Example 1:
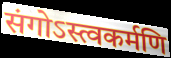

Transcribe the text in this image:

संगोऽस्त्वकर्मणि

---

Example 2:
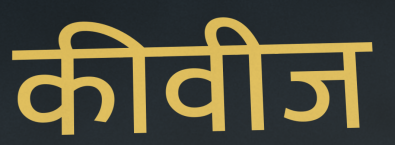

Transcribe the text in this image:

कीवीज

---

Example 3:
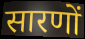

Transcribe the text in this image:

सारणों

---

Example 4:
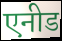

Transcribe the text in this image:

एनीड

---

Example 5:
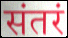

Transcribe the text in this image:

संतरं